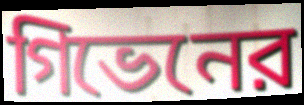
গিভেনের